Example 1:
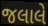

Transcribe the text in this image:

જલાલે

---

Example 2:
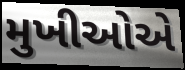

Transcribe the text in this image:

મુખીઓએ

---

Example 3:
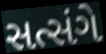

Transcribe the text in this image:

સત્સંગે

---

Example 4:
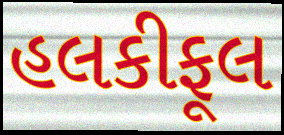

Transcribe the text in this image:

હલકીફૂલ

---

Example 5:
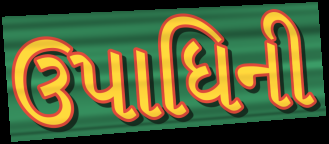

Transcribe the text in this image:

ઉપાધિની